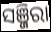
ସଞ୍ଜିରା